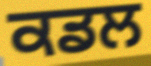
ਕਡਲ